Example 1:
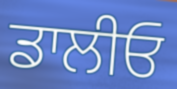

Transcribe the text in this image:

ਡਾਲੀਓ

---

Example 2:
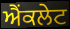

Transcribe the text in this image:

ਐਂਕਲੇਟ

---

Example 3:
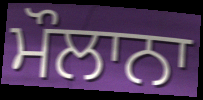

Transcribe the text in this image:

ਮੌਲਾਨਾ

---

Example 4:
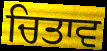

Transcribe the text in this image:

ਚਿਤਾਵ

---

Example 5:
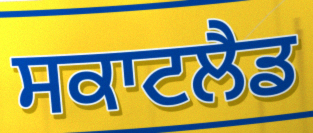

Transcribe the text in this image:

ਸਕਾਟਲੈਡ